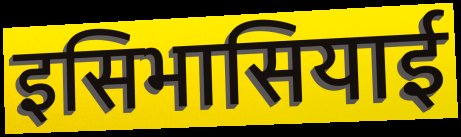
इसिभासियाई